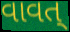
વાવત્